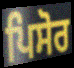
ਪਿਸੋਰ